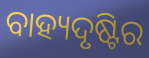
ବାହ୍ୟଦୃଷ୍ଟିର